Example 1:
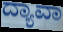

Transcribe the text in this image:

ದ್ಯಾವಾ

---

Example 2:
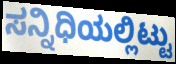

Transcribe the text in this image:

ಸನ್ನಿಧಿಯಲ್ಲಿಟ್ಟು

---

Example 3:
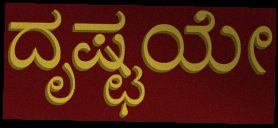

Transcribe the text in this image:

ದೃಷ್ಟಯೇ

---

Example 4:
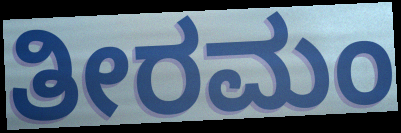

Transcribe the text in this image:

ತೀರಮಂ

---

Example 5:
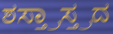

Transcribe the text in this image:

ಶಸ್ತ್ರಾಸ್ತ್ರದ